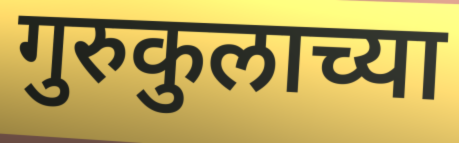
गुरुकुलाच्या